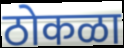
ठोकळा